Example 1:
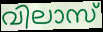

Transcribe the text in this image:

വിലാസ്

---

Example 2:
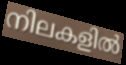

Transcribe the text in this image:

നിലകളിൽ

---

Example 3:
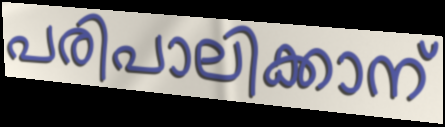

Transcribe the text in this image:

പരിപാലിക്കാന്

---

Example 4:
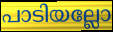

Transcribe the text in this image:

പാടിയല്ലോ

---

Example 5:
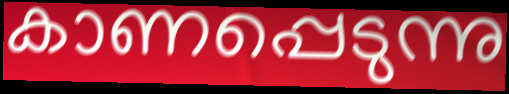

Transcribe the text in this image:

കാണപ്പെടുന്നു